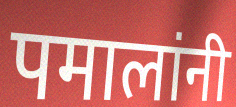
पमालांनी